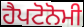
ਹੈਪਟੋਨੋਮੀ